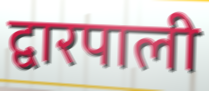
द्वारपाली